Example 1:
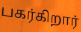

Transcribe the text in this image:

பகர்கிறார்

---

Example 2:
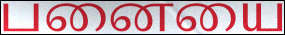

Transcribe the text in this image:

பனையை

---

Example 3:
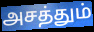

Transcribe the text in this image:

அசத்தும்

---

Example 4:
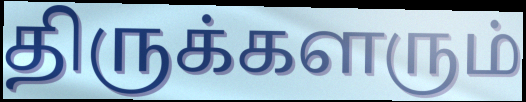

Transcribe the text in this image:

திருக்களரும்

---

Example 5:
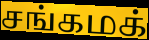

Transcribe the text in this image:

சங்கமக்